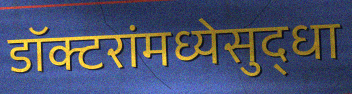
डॉक्टरांमध्येसुद्धा